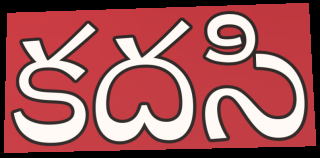
కదసి